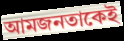
আমজনতাকেই